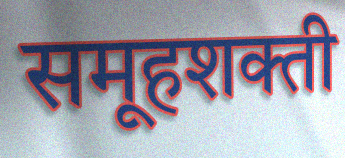
समूहशक्ती